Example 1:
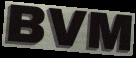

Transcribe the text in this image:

BVM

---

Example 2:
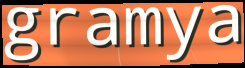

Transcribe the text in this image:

gramya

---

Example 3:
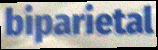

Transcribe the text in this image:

biparietal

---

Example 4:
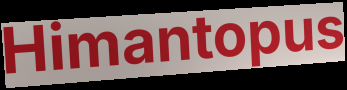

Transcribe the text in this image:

Himantopus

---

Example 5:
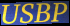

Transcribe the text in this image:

USBP